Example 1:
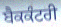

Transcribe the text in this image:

ਬੈਕਕੰਟਰੀ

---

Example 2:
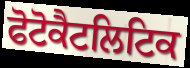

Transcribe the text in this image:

ਫੋਟੋਕੈਟਲਿਟਿਕ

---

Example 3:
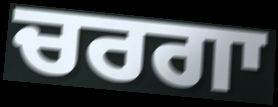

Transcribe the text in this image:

ਚਰਗਾ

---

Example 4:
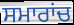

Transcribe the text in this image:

ਸਮਾਰਾਂਚ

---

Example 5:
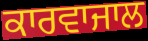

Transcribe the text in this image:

ਕਾਰਵਾਜਾਲ